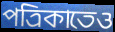
পত্রিকাতেও